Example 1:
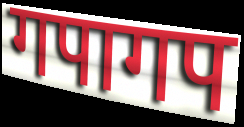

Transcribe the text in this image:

गपागप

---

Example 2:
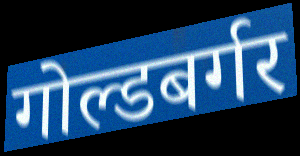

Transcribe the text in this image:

गोल्डबर्गर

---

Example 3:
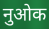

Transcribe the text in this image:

नुओक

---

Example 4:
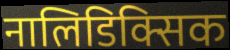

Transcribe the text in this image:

नालिडिक्सिक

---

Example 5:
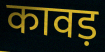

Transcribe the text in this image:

कावड़